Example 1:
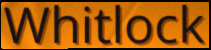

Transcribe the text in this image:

Whitlock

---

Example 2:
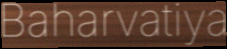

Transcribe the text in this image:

Baharvatiya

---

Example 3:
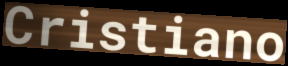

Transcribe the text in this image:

Cristiano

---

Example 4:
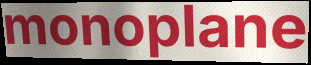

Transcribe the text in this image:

monoplane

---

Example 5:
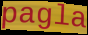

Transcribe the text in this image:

pagla